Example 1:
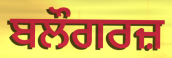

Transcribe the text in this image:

ਬਲੌਗਰਜ਼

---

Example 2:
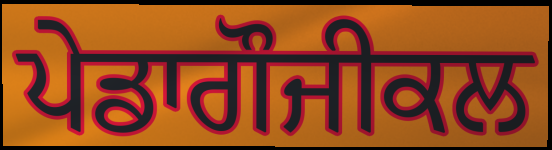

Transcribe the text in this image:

ਪੇਡਾਗੌਜੀਕਲ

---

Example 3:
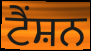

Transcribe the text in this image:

ਟੈਂਸ਼ਨ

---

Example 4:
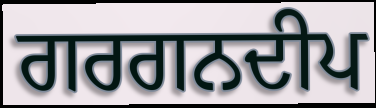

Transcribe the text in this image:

ਗਰਗਨਦੀਪ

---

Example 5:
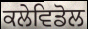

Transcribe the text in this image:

ਕਲੇਵਿਡੋਲ